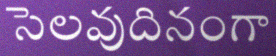
సెలవుదినంగా